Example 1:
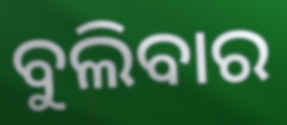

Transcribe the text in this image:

ବୁଲିବାର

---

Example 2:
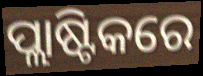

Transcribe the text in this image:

ପ୍ଲାଷ୍ଟିକରେ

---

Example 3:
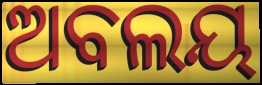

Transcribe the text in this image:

ଅବଲୟ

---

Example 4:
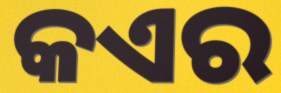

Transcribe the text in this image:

କଏର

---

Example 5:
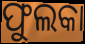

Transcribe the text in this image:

ଫୁଲକା